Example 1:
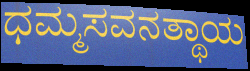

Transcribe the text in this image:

ಧಮ್ಮಸವನತ್ಥಾಯ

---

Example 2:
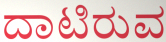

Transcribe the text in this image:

ದಾಟಿರುವ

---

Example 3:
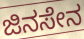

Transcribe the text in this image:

ಜಿನಸೇನ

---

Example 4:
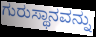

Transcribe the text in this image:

ಗುರುಸ್ಥಾನವನ್ನು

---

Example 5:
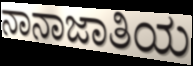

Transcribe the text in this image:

ನಾನಾಜಾತಿಯ